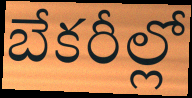
బేకరీల్లో